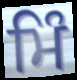
ਮਿੰ